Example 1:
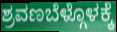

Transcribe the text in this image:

ಶ್ರವಣಬೆಳ್ಗೊಳಕ್ಕೆ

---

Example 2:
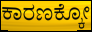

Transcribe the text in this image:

ಕಾರಣಕ್ಕೋ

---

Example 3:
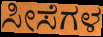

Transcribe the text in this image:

ಸೀಸೆಗಳ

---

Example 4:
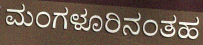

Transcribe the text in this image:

ಮಂಗಳೂರಿನಂತಹ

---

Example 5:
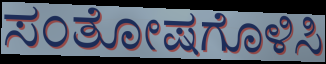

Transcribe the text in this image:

ಸಂತೋಷಗೊಳಿಸಿ